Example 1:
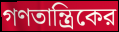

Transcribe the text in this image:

গণতান্ত্রিকের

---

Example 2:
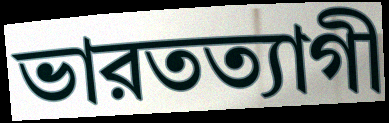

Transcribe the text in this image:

ভারতত্যাগী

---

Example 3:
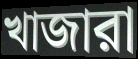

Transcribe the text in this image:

খাজারা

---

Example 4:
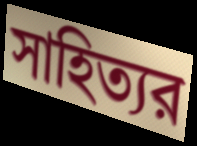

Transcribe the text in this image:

সাহিত্যর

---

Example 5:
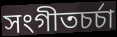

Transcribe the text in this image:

সংগীতচর্চা